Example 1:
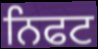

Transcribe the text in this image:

ਨਿਫਟ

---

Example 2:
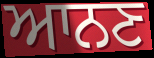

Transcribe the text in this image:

ਆਨਣ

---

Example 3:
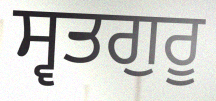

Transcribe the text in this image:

ਸ੍ਵਤਗੁਰੂ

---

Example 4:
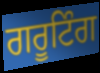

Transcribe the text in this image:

ਗਰੂਟਿੰਗ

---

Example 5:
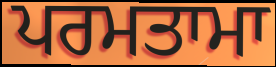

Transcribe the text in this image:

ਪਰਮਤਾਮਾ